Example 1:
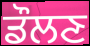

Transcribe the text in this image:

ਡੌਲਣ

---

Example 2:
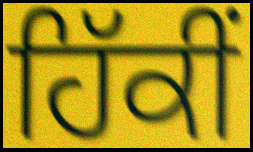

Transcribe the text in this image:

ਹਿੱਕੀਂ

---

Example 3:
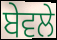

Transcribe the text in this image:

ਬੇਵਲੇ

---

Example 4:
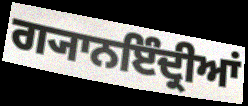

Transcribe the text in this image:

ਗ੍ਯਾਨਇੰਦ੍ਰੀਆਂ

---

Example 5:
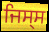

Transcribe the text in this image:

ਜਿਸ੍ਸ